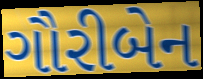
ગૌરીબેન